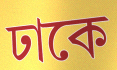
ঢাকে